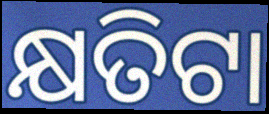
କ୍ଷତିଟା